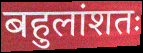
बहुलांशतः